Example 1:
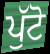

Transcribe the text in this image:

ਪੁੱਟੋ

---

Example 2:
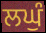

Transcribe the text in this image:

ਲਘੁੰ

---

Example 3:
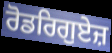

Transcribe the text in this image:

ਰੋਡਰਿਗੁਏਜ਼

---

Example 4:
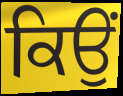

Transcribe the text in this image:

ਕਿਉੰ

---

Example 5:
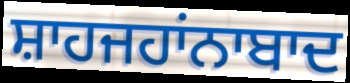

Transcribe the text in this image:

ਸ਼ਾਹਜਹਾਂਨਾਬਾਦ